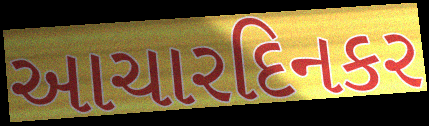
આચારદિનકર